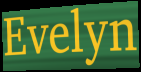
Evelyn